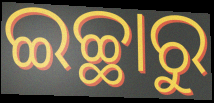
ଇଚ୍ଛାରୁ